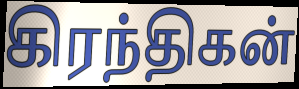
கிரந்திகன்